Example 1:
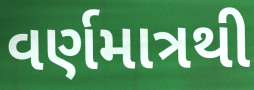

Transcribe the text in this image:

વર્ણમાત્રથી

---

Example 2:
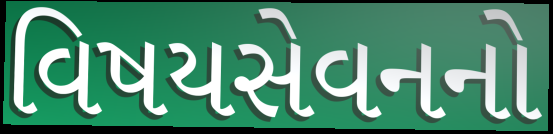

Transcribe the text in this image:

વિષયસેવનનો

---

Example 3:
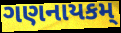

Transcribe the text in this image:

ગણનાયકમ્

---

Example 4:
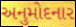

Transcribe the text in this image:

અનુમોદનાર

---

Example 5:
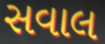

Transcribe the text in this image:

સવાલ